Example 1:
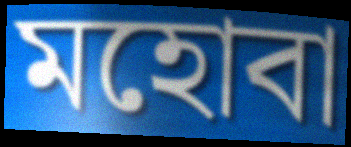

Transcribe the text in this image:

মহোবা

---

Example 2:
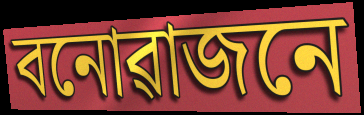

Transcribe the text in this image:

বনোৱাজনে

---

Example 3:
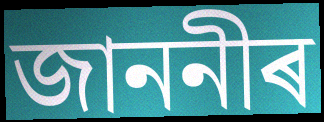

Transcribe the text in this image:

জাননীৰ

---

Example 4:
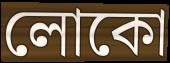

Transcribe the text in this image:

লোকো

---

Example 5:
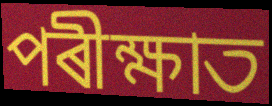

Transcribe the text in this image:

পৰীক্ষাত